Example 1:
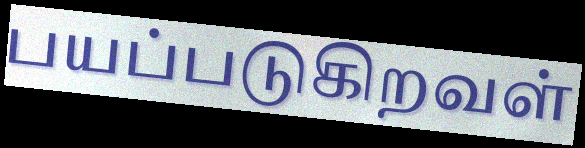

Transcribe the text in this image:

பயப்படுகிறவள்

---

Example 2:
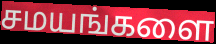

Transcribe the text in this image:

சமயங்களை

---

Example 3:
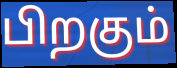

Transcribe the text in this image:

பிறகும்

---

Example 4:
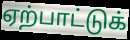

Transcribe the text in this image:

ஏற்பாட்டுக்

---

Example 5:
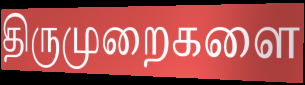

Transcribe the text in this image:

திருமுறைகளை